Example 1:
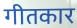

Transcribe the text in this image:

गीतकार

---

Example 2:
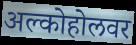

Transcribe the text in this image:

अल्कोहोलवर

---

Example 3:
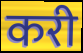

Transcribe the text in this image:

करी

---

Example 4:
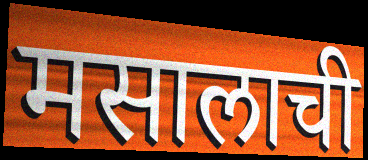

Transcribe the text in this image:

मसालाची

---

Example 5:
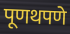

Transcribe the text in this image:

पूणथपणे